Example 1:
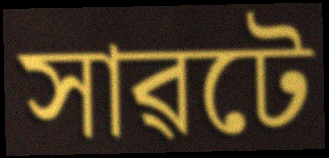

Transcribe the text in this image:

সাৱটে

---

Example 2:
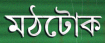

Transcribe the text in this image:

মঠটোক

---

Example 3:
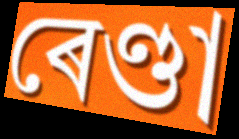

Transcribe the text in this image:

ৰেণ্ডা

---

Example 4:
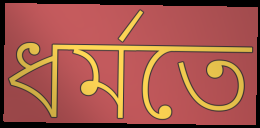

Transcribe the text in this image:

ধৰ্মতে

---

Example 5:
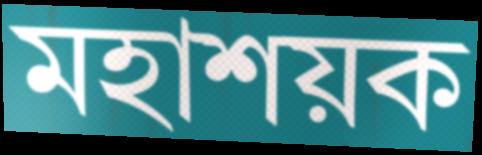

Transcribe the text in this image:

মহাশয়ক